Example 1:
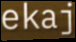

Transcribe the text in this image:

ekaj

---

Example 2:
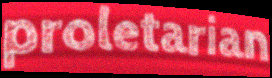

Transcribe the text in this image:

proletarian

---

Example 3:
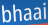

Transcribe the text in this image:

bhaai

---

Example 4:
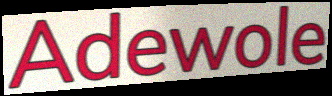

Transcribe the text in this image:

Adewole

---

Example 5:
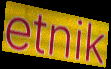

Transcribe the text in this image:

etnik